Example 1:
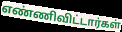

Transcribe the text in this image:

எண்ணிவிட்டார்கள்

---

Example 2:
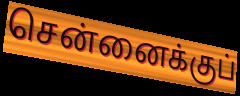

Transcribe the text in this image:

சென்னைக்குப்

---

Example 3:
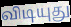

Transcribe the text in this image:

விடியுது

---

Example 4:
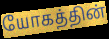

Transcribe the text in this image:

யோகத்தின்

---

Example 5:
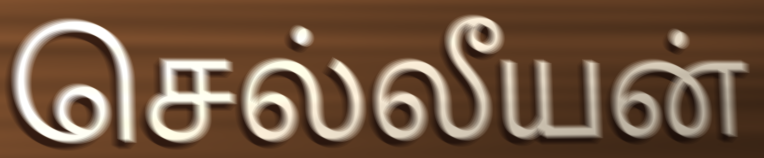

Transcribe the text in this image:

செல்லீயன்